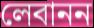
লেবানন